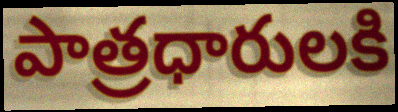
పాత్రధారులకి